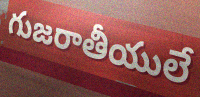
గుజరాతీయులే